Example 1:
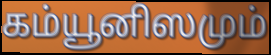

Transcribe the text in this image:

கம்யூனிஸமும்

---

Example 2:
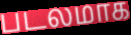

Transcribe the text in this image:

படலமாக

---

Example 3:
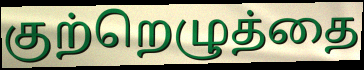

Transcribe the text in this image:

குற்றெழுத்தை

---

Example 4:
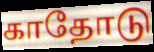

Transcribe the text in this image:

காதோடு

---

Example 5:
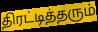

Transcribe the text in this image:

திரட்டித்தரும்